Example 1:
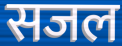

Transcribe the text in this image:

सजल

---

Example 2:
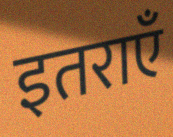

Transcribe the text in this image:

इतराएँ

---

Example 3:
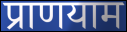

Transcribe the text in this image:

प्राणयाम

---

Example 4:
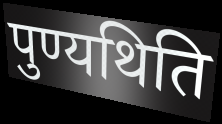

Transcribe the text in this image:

पुण्यथिति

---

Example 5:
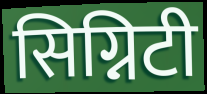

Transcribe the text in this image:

सिग्निटी